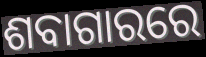
ଶବାଗାରରେ